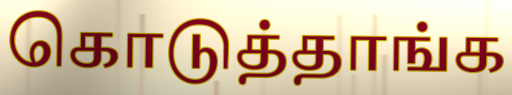
கொடுத்தாங்க